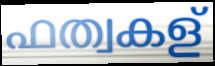
ഫത്വകള്